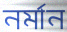
নৰ্মান